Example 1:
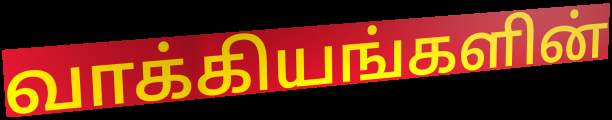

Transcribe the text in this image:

வாக்கியங்களின்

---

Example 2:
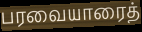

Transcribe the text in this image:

பரவையாரைத்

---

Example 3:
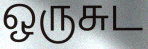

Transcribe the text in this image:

ஒருசுட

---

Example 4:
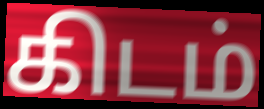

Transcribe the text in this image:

கிடம்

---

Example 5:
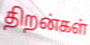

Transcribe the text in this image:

திறன்கள்